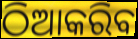
ଠିଆକରିବ